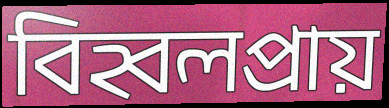
বিহ্বলপ্রায়